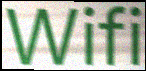
Wifi